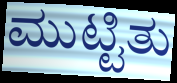
ಮುಟ್ಟಿತು